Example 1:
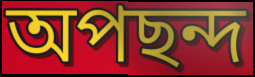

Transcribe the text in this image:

অপছন্দ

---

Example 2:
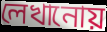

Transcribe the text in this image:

লেখানোয়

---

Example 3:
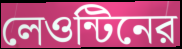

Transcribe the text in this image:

লেওন্টিনের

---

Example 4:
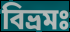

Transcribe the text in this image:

বিভ্রমঃ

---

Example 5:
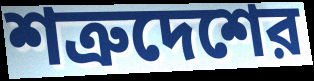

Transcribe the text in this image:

শত্রুদেশের